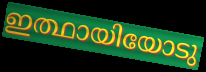
ഇത്ഥായിയോടു